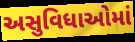
અસુવિધાઓમાં